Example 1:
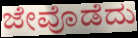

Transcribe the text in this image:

ಜೇವೊಡೆದು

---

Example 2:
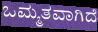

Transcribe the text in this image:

ಒಮ್ಮತವಾಗಿದೆ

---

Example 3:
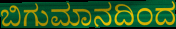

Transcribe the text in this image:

ಬಿಗುಮಾನದಿಂದ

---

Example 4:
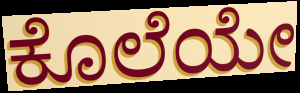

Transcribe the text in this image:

ಕೊಲೆಯೇ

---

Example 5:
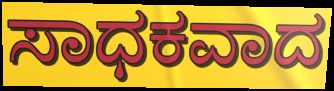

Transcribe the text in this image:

ಸಾಧಕವಾದ